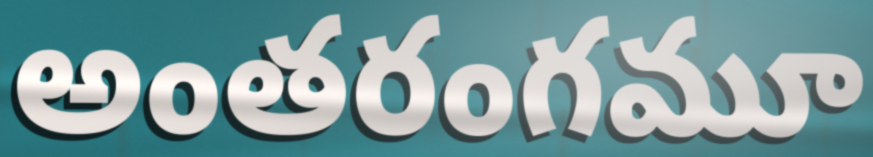
అంతరంగమూ